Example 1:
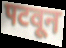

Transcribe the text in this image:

पटवून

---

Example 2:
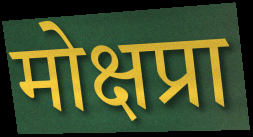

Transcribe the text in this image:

मोक्षप्रा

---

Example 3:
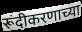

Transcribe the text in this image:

रूंदीकरणाच्या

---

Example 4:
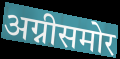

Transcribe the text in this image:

अग्नीसमोर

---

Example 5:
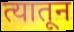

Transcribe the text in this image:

त्‍यातून